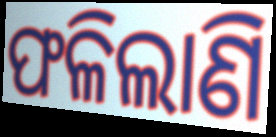
ଫଳିଲାଣି